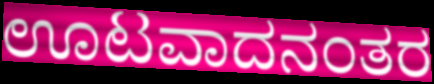
ಊಟವಾದನಂತರ